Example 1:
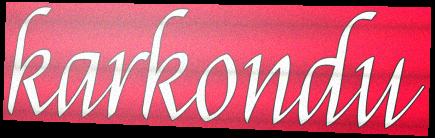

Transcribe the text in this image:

karkondu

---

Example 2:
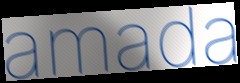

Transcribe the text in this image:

amada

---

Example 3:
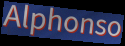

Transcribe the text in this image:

Alphonso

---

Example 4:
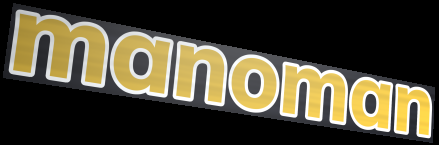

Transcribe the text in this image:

manoman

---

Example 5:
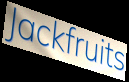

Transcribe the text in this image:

Jackfruits